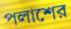
পলাশের